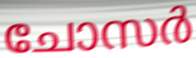
ചോസർ